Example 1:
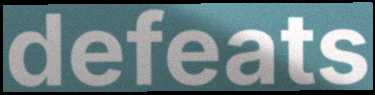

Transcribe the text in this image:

defeats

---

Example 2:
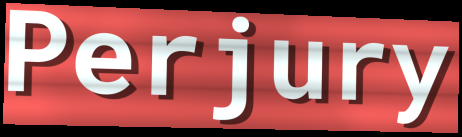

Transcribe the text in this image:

Perjury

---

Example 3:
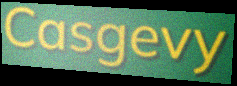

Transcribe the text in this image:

Casgevy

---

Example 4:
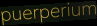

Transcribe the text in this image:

puerperium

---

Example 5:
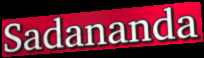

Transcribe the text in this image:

Sadananda